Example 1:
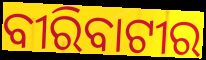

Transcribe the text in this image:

ବୀରିବାଟୀର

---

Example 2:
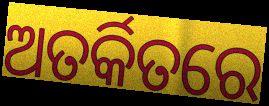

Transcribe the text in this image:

ଅତର୍କିତରେ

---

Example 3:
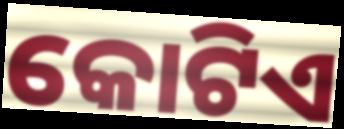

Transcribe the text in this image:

କୋଟିଏ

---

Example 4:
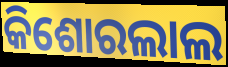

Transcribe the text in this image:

କିଶୋରଲାଲ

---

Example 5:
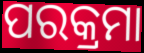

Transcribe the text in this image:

ପରକ୍ରମା